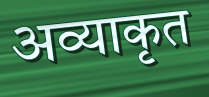
अव्याकृत